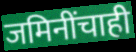
जमिनींचाही